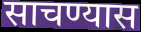
साचण्यास